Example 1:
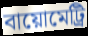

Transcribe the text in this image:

বায়োমেট্রি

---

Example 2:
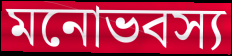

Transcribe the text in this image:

মনোভবস্য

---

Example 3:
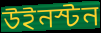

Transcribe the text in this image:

উইনস্টন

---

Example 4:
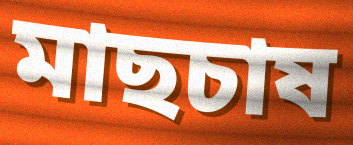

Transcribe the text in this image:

মাছচাষ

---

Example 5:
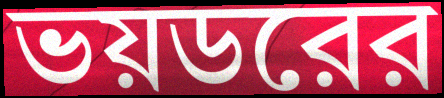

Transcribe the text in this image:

ভয়ডরের